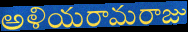
అళియరామరాజు